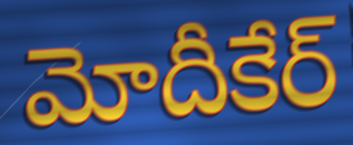
మోదీకేర్